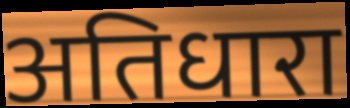
अतिधारा